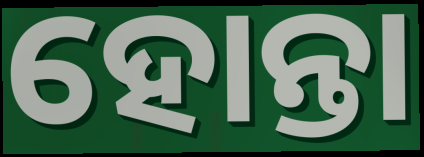
ହୋନ୍ତା